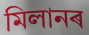
মিলানৰ